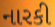
નારકી